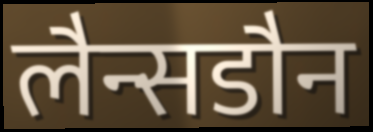
लैन्सडौन